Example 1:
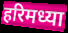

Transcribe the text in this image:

हरिमध्या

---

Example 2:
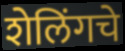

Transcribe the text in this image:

शेलिंगचे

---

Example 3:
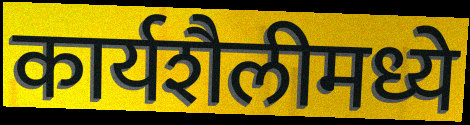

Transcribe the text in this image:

कार्यशैलीमध्ये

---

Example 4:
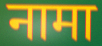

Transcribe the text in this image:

नामा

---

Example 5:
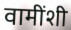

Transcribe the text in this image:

वामींशी